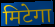
मिटेगा